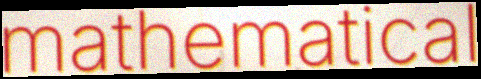
mathematical